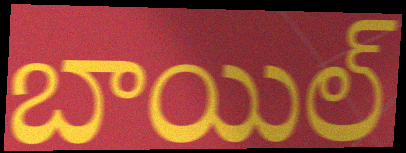
బాయిల్